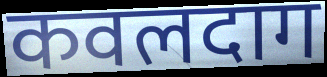
कवलदाग